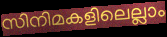
സിനിമകളിലെല്ലാം